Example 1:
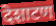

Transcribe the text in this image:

देशाटण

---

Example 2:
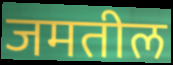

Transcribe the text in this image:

जमतील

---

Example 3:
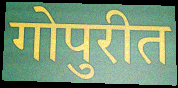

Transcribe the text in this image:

गोपुरीत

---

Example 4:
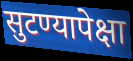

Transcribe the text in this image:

सुटण्यापेक्षा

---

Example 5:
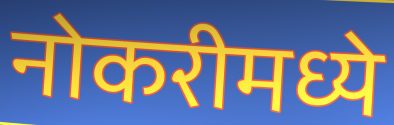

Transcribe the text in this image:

नोकरीमध्ये